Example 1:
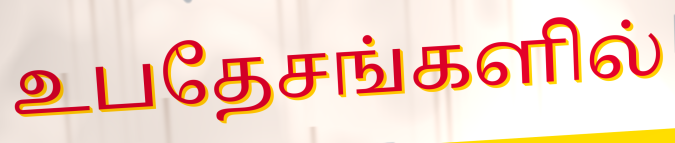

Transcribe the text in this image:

உபதேசங்களில்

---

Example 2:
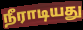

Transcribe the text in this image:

நீராடியது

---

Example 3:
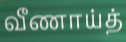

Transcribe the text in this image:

வீணாய்த்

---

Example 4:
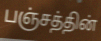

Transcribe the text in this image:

பஞ்சத்தின்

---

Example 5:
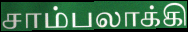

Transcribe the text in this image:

சாம்பலாக்கி